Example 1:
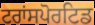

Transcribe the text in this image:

ਟਰਾਂਸਪੋਰਟਿਡ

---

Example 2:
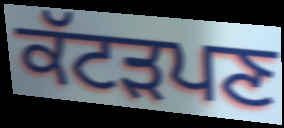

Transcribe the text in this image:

ਕੱਟੜਪਣ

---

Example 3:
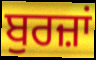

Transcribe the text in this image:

ਬੁਰਜ਼ਾਂ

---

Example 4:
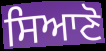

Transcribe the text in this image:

ਸਿਆਣੋ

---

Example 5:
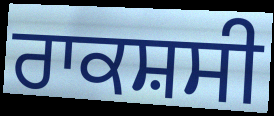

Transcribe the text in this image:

ਰਾਕਸ਼ਸੀ